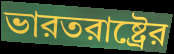
ভারতরাষ্ট্রের